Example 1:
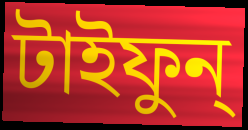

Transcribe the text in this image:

টাইফুন্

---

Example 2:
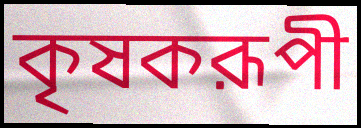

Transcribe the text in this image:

কৃষকরূপী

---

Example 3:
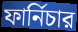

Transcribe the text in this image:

ফার্নিচার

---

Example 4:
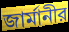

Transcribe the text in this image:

জার্মানীর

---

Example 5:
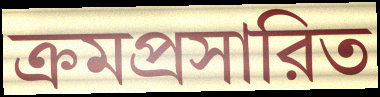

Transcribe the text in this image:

ক্রমপ্রসারিত